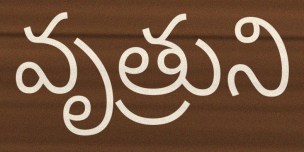
వృత్రుని